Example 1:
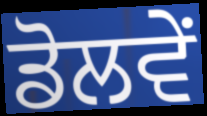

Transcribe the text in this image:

ਡੋਲਵੇਂ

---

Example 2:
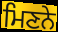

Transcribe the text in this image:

ਮਿਣਨੇ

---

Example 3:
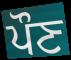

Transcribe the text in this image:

ਪੌਣ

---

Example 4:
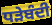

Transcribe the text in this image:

ਧੜੇਬੰਦੀ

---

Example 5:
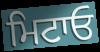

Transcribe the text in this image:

ਮਿਟਾਓ